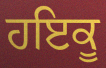
ਹਇਕੂ